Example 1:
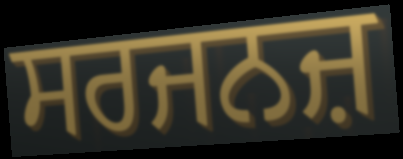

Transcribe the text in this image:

ਸਰਜਨਜ਼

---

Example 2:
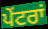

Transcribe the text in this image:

ਪੇਂਟਰਾਂ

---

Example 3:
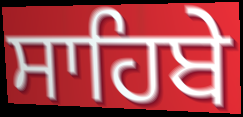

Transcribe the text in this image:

ਸਾਹਿਬੇ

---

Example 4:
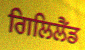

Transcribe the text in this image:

ਗਿਲਿਲੈਂਡ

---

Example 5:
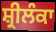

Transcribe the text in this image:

ਸ਼੍ਰੀਲੰਕਾ